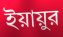
ইয়ায়ুর